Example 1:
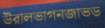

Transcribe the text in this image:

উরালভাগনজাভড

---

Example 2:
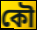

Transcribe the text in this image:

কৌ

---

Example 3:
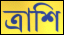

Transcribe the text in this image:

ত্রাশি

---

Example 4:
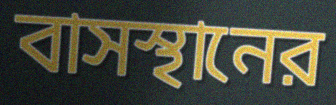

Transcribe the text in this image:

বাসস্থানের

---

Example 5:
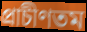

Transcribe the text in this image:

প্রাচীণতম